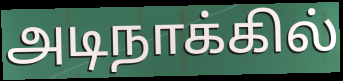
அடிநாக்கில்